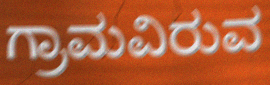
ಗ್ರಾಮವಿರುವ